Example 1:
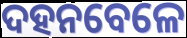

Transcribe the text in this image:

ଦହନବେଳେ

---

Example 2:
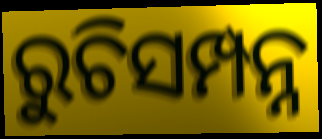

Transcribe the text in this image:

ରୁଚିସମ୍ପନ୍ନ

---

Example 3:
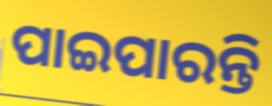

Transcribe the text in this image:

ପାଇପାରନ୍ତି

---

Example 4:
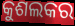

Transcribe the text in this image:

କୁଶଲକର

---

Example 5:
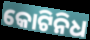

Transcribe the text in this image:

କୋଟିନିଧ